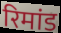
रिमांड